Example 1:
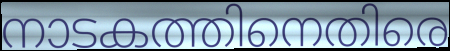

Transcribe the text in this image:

നാടകത്തിനെതിരെ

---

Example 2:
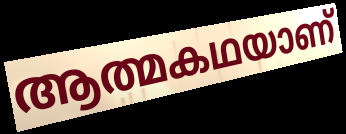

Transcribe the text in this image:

ആത്മകഥയാണ്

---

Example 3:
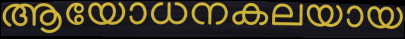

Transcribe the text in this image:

ആയോധനകലയായ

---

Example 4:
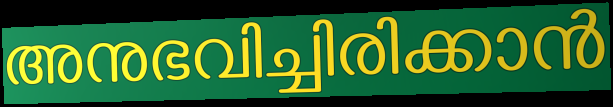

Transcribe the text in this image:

അനുഭവിച്ചിരിക്കാൻ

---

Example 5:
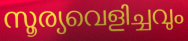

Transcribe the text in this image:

സൂര്യവെളിച്ചവും